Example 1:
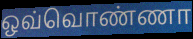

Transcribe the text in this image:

ஒவ்வொண்ணா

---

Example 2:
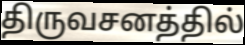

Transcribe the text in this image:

திருவசனத்தில்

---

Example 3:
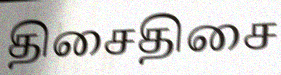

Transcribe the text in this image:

திசைதிசை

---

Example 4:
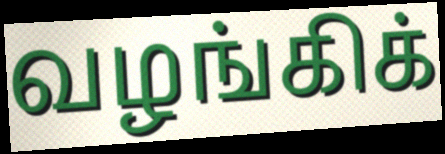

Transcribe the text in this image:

வழங்கிக்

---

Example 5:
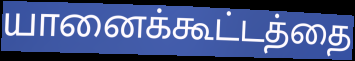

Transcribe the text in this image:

யானைக்கூட்டத்தை